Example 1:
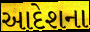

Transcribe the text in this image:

આદેશના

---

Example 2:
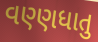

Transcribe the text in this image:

વણ્ણધાતુ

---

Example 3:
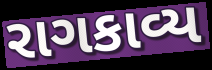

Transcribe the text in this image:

રાગકાવ્ય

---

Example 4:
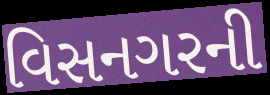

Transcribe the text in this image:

વિસનગરની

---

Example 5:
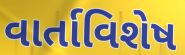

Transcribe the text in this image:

વાર્તાવિશેષ